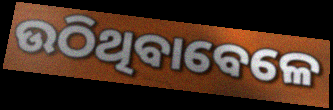
ଉଠିଥିବାବେଳେ